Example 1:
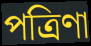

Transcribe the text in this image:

পত্রিণা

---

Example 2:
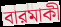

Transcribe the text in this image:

বারমাকী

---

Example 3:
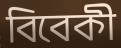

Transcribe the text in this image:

বিবেকী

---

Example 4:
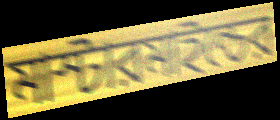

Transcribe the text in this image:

মাস্টারমাইন্ডের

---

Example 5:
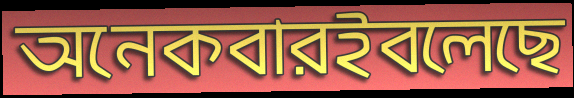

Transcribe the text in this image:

অনেকবারইবলেছে